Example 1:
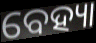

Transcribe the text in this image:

ବେହ୍ୟା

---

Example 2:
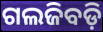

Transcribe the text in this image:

ଗଲଜିବଡ଼ି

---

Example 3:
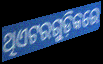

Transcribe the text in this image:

ଥିଏଟରଗୁଡ଼ିକରେ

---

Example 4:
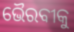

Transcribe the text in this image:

ଭୈରବୀକୁ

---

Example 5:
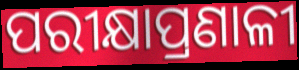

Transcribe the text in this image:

ପରୀକ୍ଷାପ୍ରଣାଳୀ